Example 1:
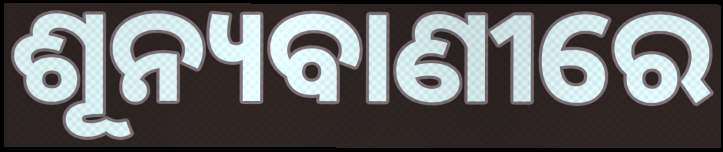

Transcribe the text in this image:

ଶୂନ୍ୟବାଣୀରେ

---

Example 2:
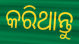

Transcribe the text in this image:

କରିଥାନ୍ତୁ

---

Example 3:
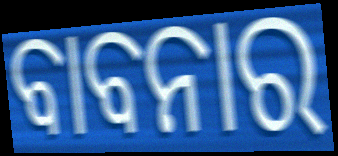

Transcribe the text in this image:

ବାବନାର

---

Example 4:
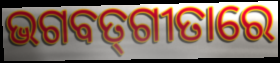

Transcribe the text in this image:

ଭଗବତ୍‌ଗୀତାରେ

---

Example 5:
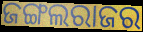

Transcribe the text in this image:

ଜଙ୍ଗଲରାଜର